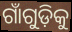
ଗାଁଗୁଡ଼ିକୁ